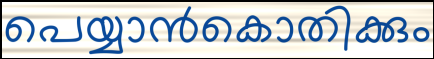
പെയ്യാൻകൊതിക്കും